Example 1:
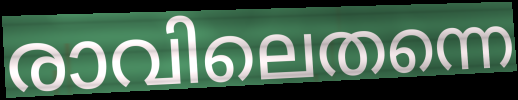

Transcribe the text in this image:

രാവിലെതന്നെ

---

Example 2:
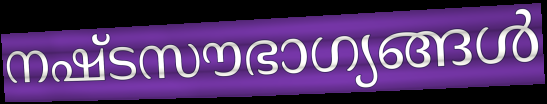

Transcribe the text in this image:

നഷ്ടസൗഭാഗ്യങ്ങൾ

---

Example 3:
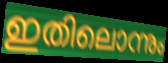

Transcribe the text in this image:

ഇതിലൊന്നും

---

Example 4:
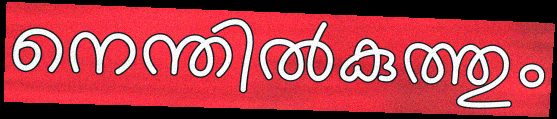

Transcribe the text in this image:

നെന്തിൽകുത്തും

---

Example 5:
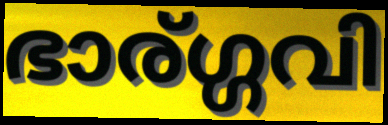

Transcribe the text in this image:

ഭാര്ഗ്ഗവി